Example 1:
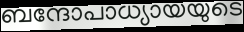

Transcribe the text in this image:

ബന്ദോപാധ്യായയുടെ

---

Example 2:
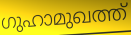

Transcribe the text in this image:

ഗുഹാമുഖത്ത്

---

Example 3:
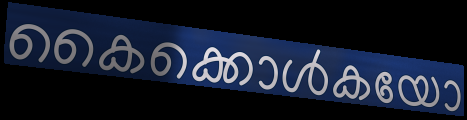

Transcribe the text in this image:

കൈക്കൊൾകയോ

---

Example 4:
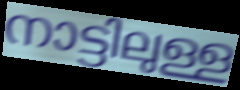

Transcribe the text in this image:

നാട്ടിലുള്ള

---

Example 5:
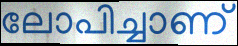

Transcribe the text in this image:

ലോപിച്ചാണ്